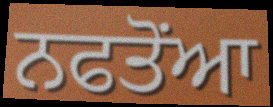
ਨਫਤੋਂਆ